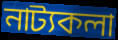
নাট্যকলা